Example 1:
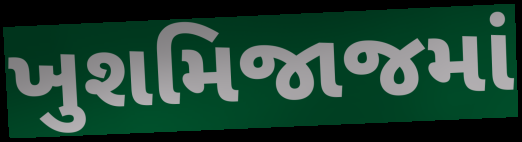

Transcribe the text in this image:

ખુશમિજાજમાં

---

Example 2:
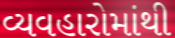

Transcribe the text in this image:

વ્યવહારોમાંથી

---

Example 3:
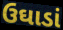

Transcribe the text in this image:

ઉઘાડાં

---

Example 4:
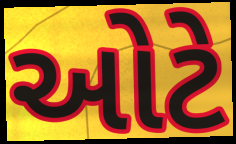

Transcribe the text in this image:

ઓટે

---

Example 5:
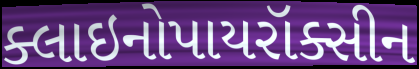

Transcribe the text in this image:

ક્લાઇનોપાયરૉક્સીન